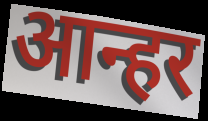
आन्हर